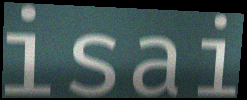
isai